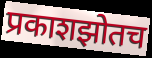
प्रकाशझोतच